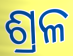
ଶ୍ରଳ